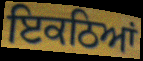
ਇਕਠਿਆਂ